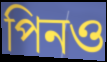
পিনও